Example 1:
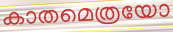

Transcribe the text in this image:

കാതമെത്രയോ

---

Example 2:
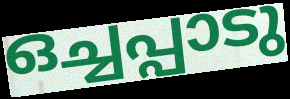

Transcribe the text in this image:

ഒച്ചപ്പാടു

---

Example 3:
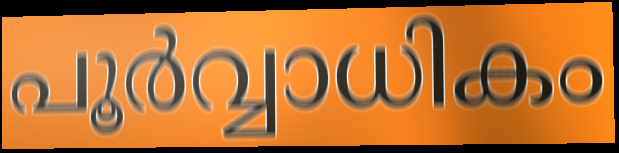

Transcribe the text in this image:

പൂർവ്വാധികം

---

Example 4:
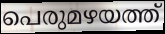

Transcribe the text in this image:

പെരുമഴയത്ത്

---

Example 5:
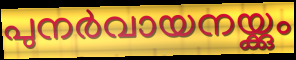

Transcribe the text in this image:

പുനർവായനയ്ക്കും